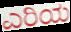
ಎರಿಯ